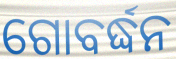
ଗୋବର୍ଦ୍ଧନ